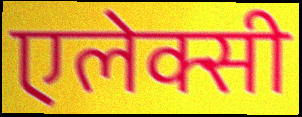
एलेक्सी